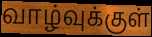
வாழ்வுக்குள்